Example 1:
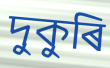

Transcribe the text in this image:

দুকুৰি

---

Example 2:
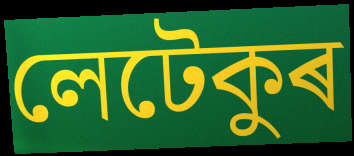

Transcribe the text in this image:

লেটেকুৰ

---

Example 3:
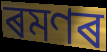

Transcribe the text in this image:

ৰমণৰ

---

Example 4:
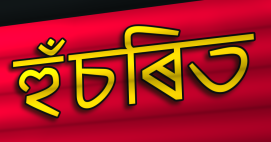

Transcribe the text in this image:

হুঁচৰিত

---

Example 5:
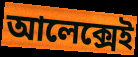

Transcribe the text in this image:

আলেক্সেই